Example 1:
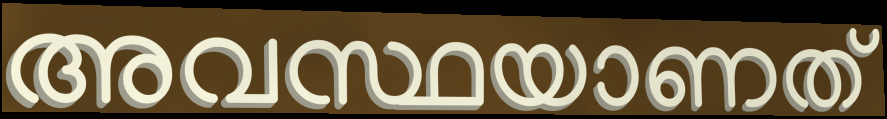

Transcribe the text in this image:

അവസ്ഥയാണത്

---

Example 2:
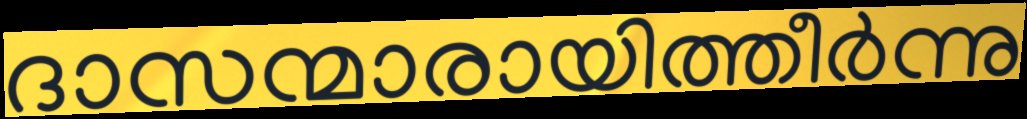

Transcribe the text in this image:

ദാസന്മാരായിത്തീർന്നു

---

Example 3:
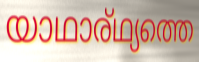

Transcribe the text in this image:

യാഥാര്ഥ്യത്തെ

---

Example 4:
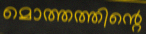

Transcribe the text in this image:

മൊത്തത്തിന്റെ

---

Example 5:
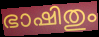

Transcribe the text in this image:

ഭാഷിതും